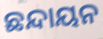
ଛନ୍ଦାୟନ